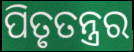
ପିତୃତନ୍ତ୍ରର